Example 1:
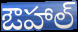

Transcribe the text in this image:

ఔహాల్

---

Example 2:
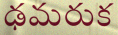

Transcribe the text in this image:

ఢమరుక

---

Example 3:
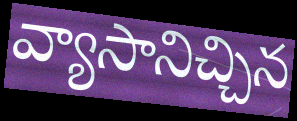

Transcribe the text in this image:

వ్యాసానిచ్చిన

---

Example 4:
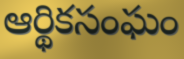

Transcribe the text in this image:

ఆర్థికసంఘం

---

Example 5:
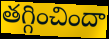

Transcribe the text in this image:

తగ్గించిందా